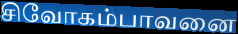
சிவோகம்பாவனை